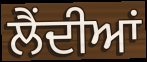
ਲੈਂਦੀਆਂ